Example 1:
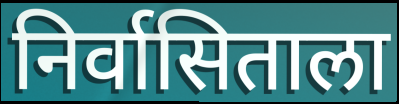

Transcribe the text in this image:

निर्वासिताला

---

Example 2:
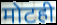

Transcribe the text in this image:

मोटही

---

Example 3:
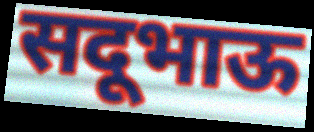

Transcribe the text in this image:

सदूभाऊ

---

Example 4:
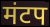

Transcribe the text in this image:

मंटप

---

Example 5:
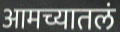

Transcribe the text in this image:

आमच्यातलं